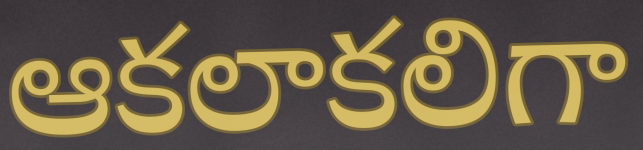
ఆకలాకలిగా